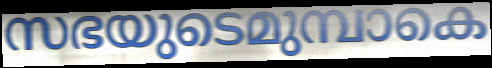
സഭയുടെമുമ്പാകെ